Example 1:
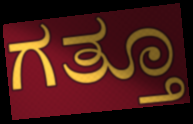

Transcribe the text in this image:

ಗತ್ತೂ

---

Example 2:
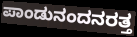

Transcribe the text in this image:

ಪಾಂಡುನಂದನರತ್ತ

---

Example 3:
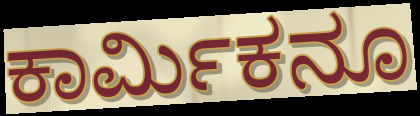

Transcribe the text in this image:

ಕಾರ್ಮಿಕನೂ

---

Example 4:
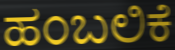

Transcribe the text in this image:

ಹಂಬಲಿಕೆ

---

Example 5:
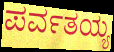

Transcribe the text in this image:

ಪರ್ವತಯ್ಯ